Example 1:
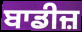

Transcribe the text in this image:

ਬਾਡੀਜ਼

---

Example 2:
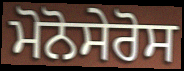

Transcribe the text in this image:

ਮੋਨੋਸੇਰੋਸ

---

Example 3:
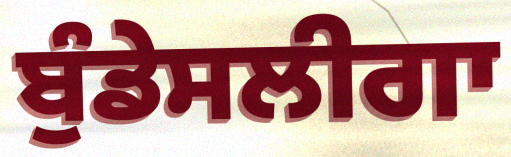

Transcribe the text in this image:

ਬੁੰਡੇਸਲੀਗਾ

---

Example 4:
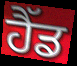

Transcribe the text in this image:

ਹੈੱਡ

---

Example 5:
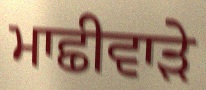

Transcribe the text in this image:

ਮਾਛੀਵਾੜੇ